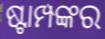
ଷ୍ଟାମ୍ପଙ୍କର